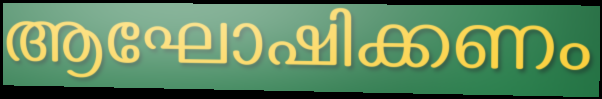
ആഘോഷിക്കണം